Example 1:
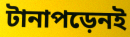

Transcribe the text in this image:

টানাপড়েনই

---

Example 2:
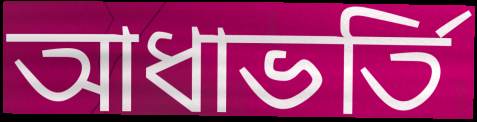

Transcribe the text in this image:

আধাভর্তি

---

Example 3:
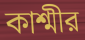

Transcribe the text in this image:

কাশ্মীর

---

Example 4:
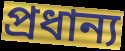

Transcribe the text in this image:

প্রধান্য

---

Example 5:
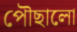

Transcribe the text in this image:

পৌছালো